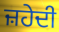
ਜ਼ਹੇਦੀ